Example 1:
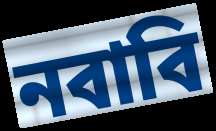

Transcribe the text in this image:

নবাবি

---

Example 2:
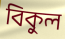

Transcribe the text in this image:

বিকুল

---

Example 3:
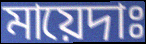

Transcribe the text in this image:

মায়েদাঃ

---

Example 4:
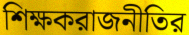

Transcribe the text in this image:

শিক্ষকরাজনীতির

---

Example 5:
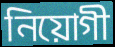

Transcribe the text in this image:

নিয়োগী